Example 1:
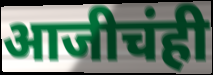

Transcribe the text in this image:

आजीचंही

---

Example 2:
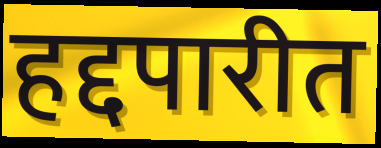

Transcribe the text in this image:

हद्दपारीत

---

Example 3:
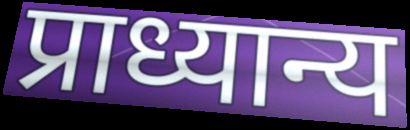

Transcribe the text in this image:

प्राध्यान्य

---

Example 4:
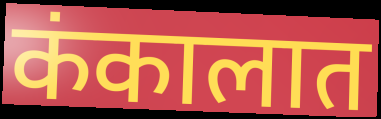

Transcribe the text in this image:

कंकालात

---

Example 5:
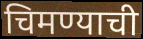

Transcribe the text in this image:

चिमण्याची